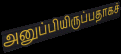
அனுப்பியிருப்பதாகச்